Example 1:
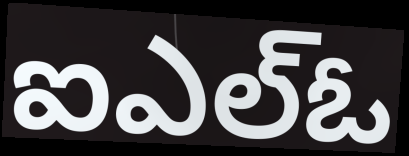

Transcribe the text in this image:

ఐఎల్ఓ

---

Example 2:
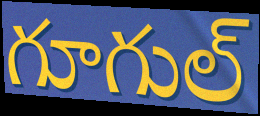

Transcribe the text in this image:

గూగుల్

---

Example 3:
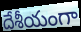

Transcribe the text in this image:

దేశీయంగా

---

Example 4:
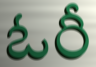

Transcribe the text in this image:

ఓరీ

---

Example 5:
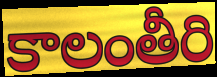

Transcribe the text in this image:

కాలంతీరి